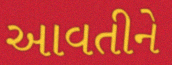
આવતીને